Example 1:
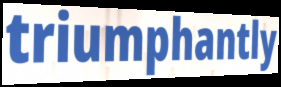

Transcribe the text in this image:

triumphantly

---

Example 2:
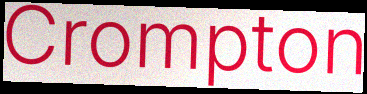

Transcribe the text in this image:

Crompton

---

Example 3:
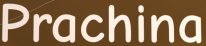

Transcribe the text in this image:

Prachina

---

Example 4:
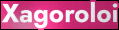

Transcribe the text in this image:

Xagoroloi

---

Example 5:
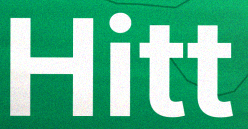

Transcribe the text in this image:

Hitt